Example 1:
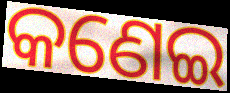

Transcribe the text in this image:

କଣେଇ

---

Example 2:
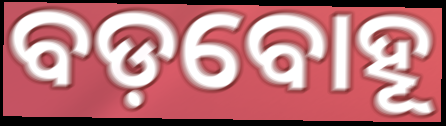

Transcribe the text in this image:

ବଡ଼ବୋହୂ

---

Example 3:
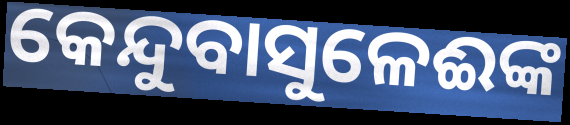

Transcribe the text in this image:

କେନ୍ଦୁବାସୁଳେଈଙ୍କ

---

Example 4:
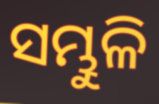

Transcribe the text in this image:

ସମ୍ଭୁଳି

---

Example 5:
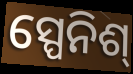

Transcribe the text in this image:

ସ୍ପେନିଶ୍